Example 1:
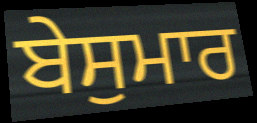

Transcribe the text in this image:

ਬੇਸੁਮਾਰ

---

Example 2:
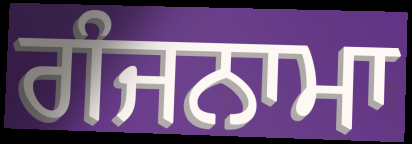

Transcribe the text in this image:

ਗੰਜਨਾਮਾ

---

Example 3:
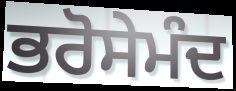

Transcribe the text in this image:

ਭਰੋਸੇਮੰਦ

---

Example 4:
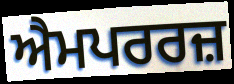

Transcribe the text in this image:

ਐਮਪਰਰਜ਼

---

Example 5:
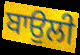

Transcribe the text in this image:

ਬਾਉਲੀ